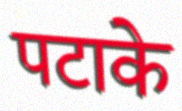
पटाके